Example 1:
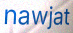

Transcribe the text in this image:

nawjat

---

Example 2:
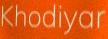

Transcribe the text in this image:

Khodiyar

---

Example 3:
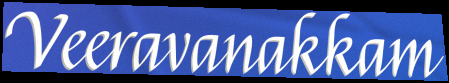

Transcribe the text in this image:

Veeravanakkam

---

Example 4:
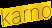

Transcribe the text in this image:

karno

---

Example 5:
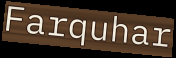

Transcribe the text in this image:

Farquhar